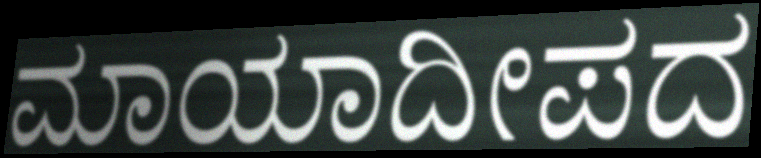
ಮಾಯಾದೀಪದ